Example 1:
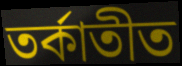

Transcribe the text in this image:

তৰ্কাতীত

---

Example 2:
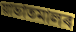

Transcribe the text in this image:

য়াভাতমালৰ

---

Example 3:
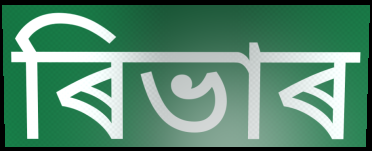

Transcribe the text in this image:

ৰিভাৰ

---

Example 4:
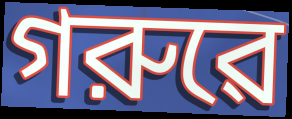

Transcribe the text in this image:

গৰুৱে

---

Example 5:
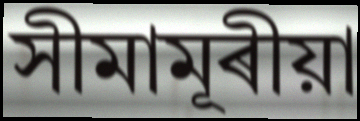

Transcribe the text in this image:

সীমামূৰীয়া